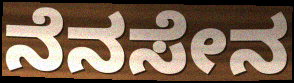
ನೆನಸೇನ